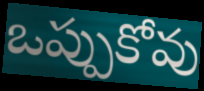
ఒప్పుకోవు